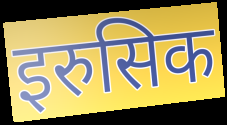
इरुसिक